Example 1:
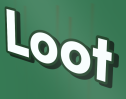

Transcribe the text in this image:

Loot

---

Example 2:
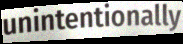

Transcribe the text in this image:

unintentionally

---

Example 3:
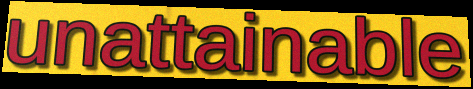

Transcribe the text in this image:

unattainable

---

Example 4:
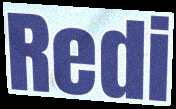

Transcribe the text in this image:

Redi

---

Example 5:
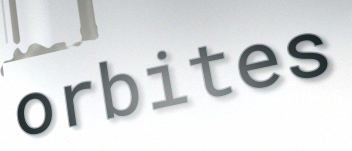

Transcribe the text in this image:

orbites